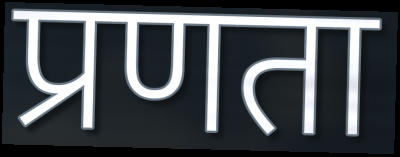
प्रणता